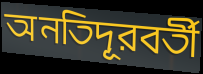
অনতিদূরবর্তী